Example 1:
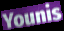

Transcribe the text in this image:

Younis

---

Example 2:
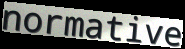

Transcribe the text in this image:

normative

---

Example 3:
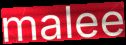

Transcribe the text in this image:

malee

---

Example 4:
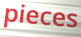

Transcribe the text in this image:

pieces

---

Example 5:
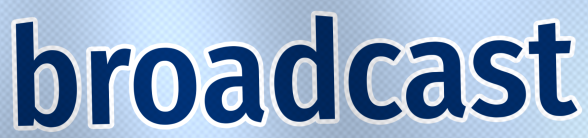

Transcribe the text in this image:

broadcast